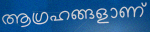
ആഗ്രഹങ്ങളാണ്